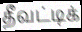
தீவட்டிக்